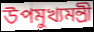
উপমুখ্যমন্ত্রী